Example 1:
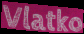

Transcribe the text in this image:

Vlatko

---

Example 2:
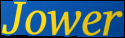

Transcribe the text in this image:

Jower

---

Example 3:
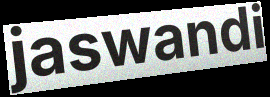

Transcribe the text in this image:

jaswandi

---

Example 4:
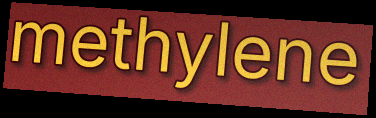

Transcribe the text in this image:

methylene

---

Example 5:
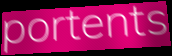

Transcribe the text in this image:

portents